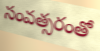
సంవత్సరంతో